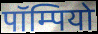
पॉम्पियो